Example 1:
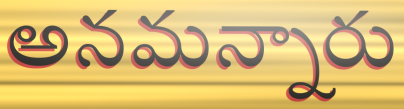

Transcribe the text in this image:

అనమన్నారు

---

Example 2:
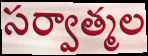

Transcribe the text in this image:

సర్వాత్మల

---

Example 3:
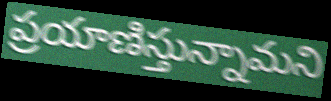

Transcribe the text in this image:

ప్రయాణిస్తున్నామని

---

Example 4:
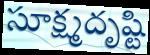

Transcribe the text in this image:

సూక్ష్మదృష్టి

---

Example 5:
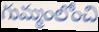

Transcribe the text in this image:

గుమ్మంలోంచి